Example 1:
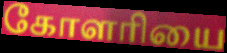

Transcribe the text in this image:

கோளரியை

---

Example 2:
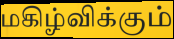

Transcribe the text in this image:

மகிழ்விக்கும்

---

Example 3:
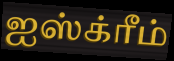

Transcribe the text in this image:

ஐஸ்க்ரீம்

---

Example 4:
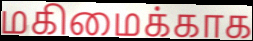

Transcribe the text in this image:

மகிமைக்காக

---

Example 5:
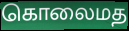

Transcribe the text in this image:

கொலைமத